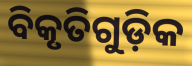
ବିକୃତିଗୁଡ଼ିକ